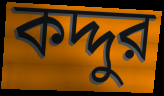
কদ্দুর